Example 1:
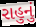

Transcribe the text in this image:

રાહુનું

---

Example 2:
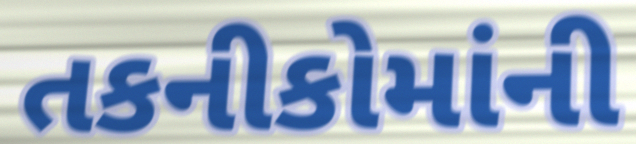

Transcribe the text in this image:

તકનીકોમાંની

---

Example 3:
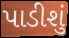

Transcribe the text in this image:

પાડીશું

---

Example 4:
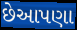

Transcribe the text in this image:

છેઆપણા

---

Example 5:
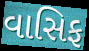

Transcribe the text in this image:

વાસિફ